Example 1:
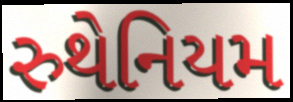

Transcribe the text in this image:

રુથેનિયમ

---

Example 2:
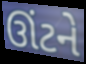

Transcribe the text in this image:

ઊંટને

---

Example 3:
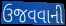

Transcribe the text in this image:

ઉજવવાની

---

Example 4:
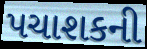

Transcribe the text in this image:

પચાશકની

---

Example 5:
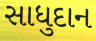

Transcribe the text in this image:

સાધુદાન